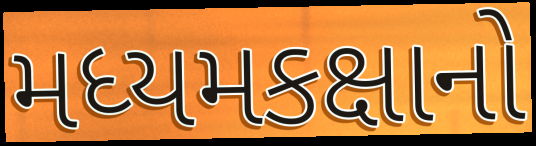
મધ્યમકક્ષાનો